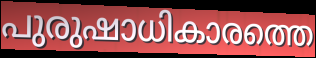
പുരുഷാധികാരത്തെ